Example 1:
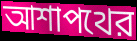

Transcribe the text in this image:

আশাপথের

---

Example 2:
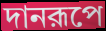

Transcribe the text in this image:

দানরূপে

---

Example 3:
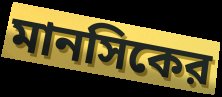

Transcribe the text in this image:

মানসিকের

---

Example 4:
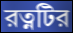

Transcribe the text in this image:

রত্নটির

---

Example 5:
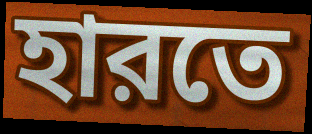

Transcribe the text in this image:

হারতে